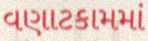
વણાટકામમાં